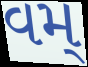
વમ્